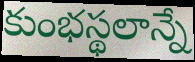
కుంభస్థలాన్నే